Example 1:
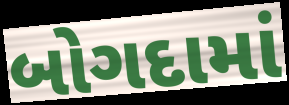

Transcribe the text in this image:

બોગદામાં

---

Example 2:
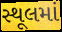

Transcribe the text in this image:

સ્થૂલમાં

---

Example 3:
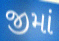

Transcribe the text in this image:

જીમાં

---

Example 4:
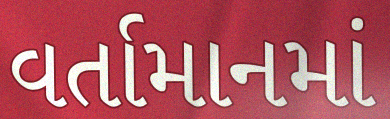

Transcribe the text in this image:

વર્તામાનમાં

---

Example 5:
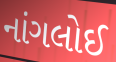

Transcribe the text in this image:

નાંગલોઈ